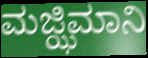
ಮಜ್ಝಿಮಾನಿ